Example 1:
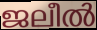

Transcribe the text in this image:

ജലീൽ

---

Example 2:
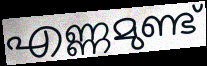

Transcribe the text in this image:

എണ്ണമുണ്ട്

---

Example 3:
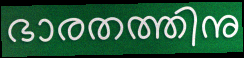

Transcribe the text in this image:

ഭാരതത്തിനു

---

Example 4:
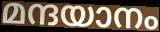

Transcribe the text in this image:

മന്ദയാനം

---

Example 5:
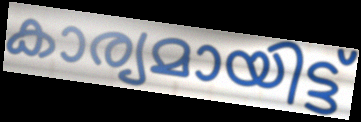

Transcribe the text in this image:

കാര്യമായിട്ട്